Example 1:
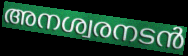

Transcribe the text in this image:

അനശ്വരനടൻ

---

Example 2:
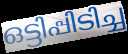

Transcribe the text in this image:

ഒട്ടിപ്പിടിച്ച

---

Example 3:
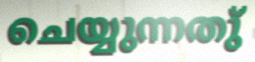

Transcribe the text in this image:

ചെയ്യുന്നതു്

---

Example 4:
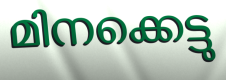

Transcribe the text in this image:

മിനക്കെട്ടു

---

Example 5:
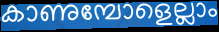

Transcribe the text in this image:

കാണുമ്പോളെല്ലാം